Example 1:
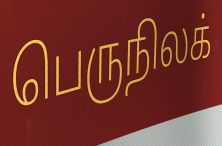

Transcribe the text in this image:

பெருநிலக்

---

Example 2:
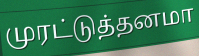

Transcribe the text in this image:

முரட்டுத்தனமா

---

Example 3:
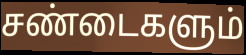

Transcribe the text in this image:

சண்டைகளும்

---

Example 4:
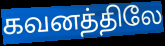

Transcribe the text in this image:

கவனத்திலே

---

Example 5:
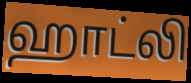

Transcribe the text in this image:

ஹாட்லி